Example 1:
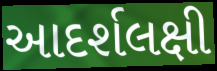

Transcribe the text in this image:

આદર્શલક્ષી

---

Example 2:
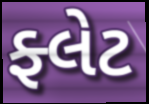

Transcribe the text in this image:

ફ્લેટ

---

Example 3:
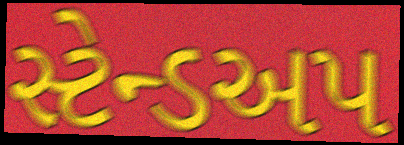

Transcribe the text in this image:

સ્ટેન્ડઅપ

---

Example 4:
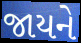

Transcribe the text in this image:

જાયને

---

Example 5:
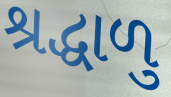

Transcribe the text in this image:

શ્રદ્ધાળુ